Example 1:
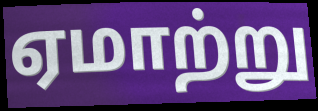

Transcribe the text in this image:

ஏமாற்று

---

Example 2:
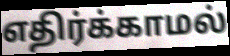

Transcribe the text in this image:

எதிர்க்காமல்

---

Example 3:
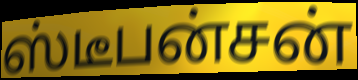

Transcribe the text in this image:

ஸ்டீபன்சன்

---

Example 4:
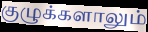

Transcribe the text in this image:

குழுக்களாலும்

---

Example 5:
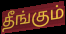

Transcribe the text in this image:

தீங்கும்